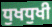
ਧੁਖਧੁਖੀ